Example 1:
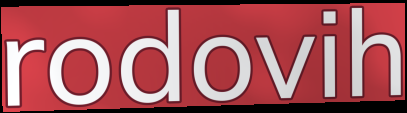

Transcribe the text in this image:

rodovih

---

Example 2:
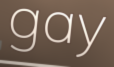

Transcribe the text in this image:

gay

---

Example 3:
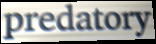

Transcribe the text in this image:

predatory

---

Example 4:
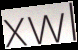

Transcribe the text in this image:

xwl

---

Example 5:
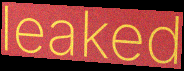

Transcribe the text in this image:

leaked